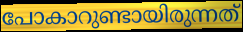
പോകാറുണ്ടായിരുന്നത്